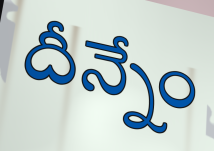
దీన్నేం